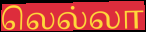
லெல்லா